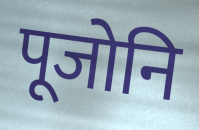
पूजोनि